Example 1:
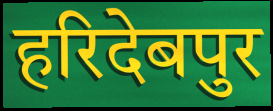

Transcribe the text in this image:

हरिदेबपुर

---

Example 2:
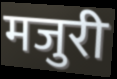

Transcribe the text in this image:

मजुरी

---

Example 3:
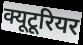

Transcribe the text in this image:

क्यूटूरियर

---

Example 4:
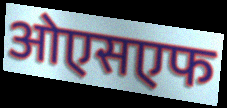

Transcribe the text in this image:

ओएसएफ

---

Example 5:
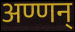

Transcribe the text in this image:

अण्णन्